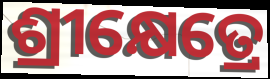
ଶ୍ରୀକ୍ଷେତ୍ରେ